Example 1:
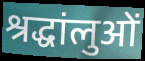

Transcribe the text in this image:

श्रद्धांलुओं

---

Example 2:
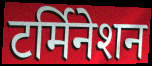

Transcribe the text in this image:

टर्मिनेशन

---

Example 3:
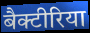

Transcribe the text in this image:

बैक्टीरिया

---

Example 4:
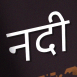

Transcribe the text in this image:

नदी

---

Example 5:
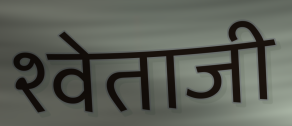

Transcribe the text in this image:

श्वेताजी